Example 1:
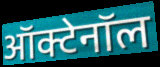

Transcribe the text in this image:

ऑक्टेनॉल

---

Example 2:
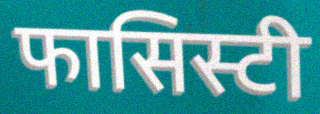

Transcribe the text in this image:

फासिस्टी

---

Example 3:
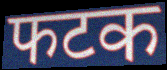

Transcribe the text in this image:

फटक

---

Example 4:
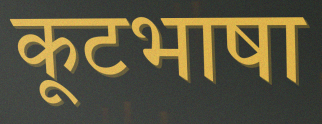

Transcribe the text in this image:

कूटभाषा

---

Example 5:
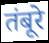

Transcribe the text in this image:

तंबूरे